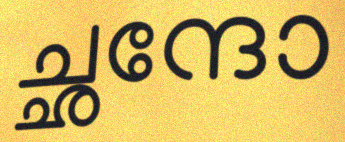
ച്ഛന്ദോ